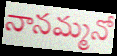
నానమ్మనో